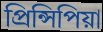
প্ৰিন্সিপিয়া